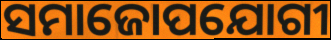
ସମାଜୋପଯୋଗୀ